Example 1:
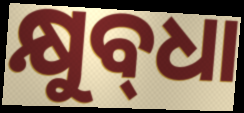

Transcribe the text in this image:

କ୍ଷୁବ୍‌ଧା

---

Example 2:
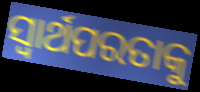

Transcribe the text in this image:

ସ୍ଵାର୍ଥପରତାକୁ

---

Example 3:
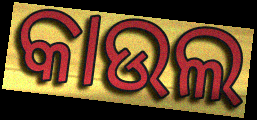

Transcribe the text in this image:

କାଉଲ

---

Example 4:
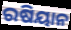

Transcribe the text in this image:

ରଷିୟାନ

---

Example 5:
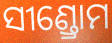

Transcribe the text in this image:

ସୀଣ୍ଡ୍ରୋମ